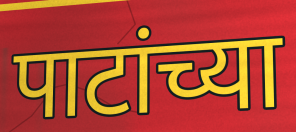
पाटांच्या